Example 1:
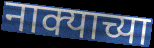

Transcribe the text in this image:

नाक्याच्या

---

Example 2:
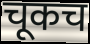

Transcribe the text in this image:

चूकच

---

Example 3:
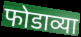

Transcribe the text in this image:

फोडाव्या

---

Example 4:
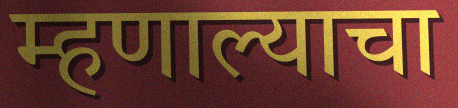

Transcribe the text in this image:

म्हणाल्याचा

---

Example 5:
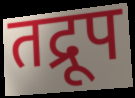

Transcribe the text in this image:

तद्रूप